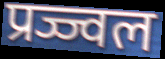
प्रज्ज्वल